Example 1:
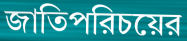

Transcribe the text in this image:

জাতিপরিচয়ের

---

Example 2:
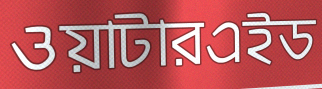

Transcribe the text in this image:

ওয়াটারএইড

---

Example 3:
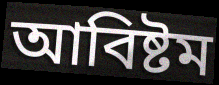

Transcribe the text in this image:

আবিষ্টম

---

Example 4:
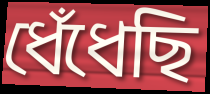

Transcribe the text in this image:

ধেঁধেছি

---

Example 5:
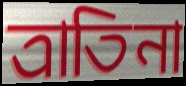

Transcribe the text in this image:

ত্রাতিনা